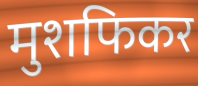
मुशफिकर